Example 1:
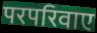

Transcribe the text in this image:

परपरिवाए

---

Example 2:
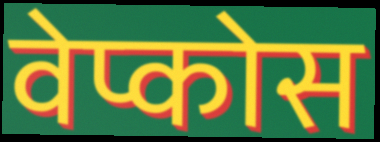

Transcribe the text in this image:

वेप्कोस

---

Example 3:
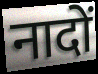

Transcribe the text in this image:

नादों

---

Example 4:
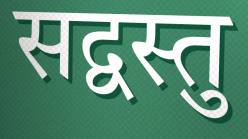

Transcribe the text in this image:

सद्वस्तु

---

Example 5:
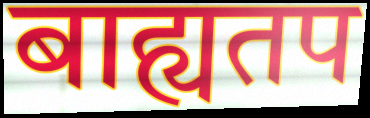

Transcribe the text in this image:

बाह्यतप